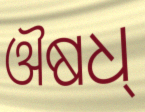
ଔଷଧ୍